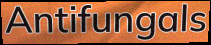
Antifungals